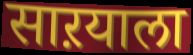
साऱयाला